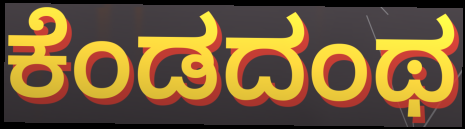
ಕೆಂಡದಂಥ